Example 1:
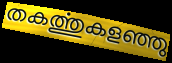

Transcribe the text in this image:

തകൎത്തുകളഞ്ഞു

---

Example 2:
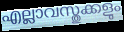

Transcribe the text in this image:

എല്ലാവസ്തുക്കളും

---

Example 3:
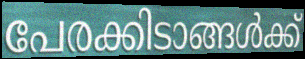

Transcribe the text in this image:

പേരക്കിടാങ്ങൾക്ക്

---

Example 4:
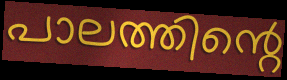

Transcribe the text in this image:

പാലത്തിന്റെ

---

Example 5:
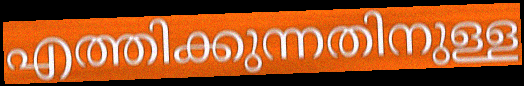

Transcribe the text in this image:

എത്തിക്കുന്നതിനുള്ള